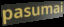
pasumai